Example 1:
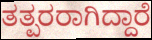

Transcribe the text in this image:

ತತ್ಪರರಾಗಿದ್ದಾರೆ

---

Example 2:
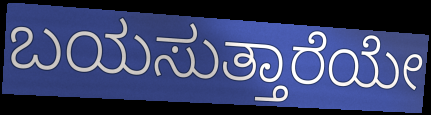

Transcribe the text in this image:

ಬಯಸುತ್ತಾರೆಯೇ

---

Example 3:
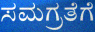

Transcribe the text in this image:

ಸಮಗ್ರತೆಗೆ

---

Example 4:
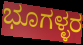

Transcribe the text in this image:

ಭೂಗಳ್ಳರ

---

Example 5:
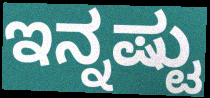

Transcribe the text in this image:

ಇನ್ನಷ್ಟು